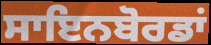
ਸਾਇਨਬੋਰਡਾਂ